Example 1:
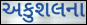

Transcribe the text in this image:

અકુશલના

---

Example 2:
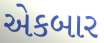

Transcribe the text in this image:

એકબાર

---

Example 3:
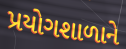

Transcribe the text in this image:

પ્રયોગશાળાને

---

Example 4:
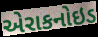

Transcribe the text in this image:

એરાકનોઇડ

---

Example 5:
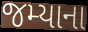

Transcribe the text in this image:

જમ્યાના